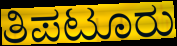
ತಿಪಟೂರು